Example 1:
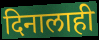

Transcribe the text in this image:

दिनालाही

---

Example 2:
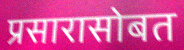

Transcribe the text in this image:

प्रसारासोबत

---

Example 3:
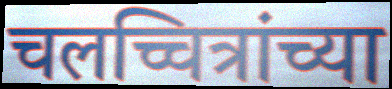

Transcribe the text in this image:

चलच्चित्रांच्या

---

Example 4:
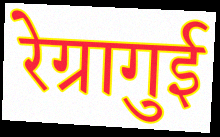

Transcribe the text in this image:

रेग्रागुई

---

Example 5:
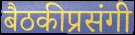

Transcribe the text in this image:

बैठकीप्रसंगी